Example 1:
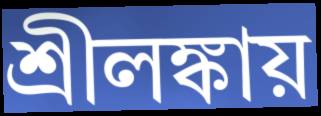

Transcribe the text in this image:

শ্রীলঙ্কায়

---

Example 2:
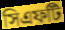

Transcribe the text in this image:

সিএফটি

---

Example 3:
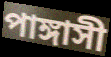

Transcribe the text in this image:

পাঙ্গাসী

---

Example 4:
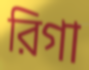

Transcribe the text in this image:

রিগা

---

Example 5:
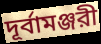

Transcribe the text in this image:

দূর্বামঞ্জরী